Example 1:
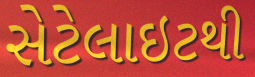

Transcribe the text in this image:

સેટેલાઇટથી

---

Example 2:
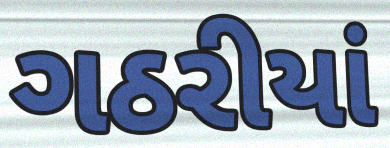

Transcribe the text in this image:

ગઠરીયાં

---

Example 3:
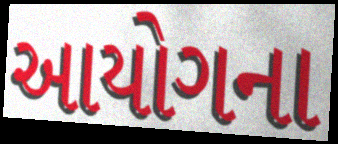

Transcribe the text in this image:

આયોગના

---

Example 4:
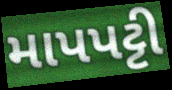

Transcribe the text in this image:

માપપટ્ટી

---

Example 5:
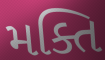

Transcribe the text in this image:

મક્તિ